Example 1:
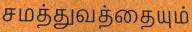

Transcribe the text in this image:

சமத்துவத்தையும்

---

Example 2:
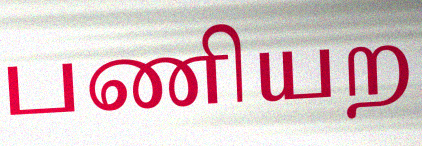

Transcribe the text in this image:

பணியற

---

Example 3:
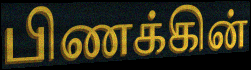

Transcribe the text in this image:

பிணக்கின்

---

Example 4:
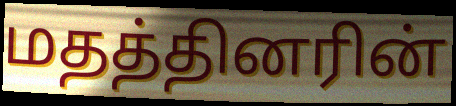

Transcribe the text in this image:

மதத்தினரின்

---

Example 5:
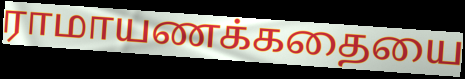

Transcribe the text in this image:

ராமாயணக்கதையை